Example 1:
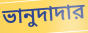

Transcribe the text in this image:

ভানুদাদার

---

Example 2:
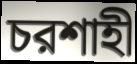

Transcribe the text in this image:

চরশাহী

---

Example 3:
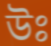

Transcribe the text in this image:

উঃ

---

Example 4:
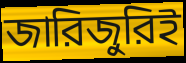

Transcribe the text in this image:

জারিজুরিই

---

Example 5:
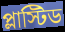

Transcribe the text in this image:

প্লাস্টিড